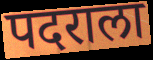
पदराला